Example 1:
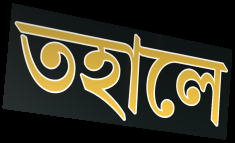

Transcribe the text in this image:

তহালে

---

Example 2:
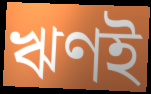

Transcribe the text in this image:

ঋণই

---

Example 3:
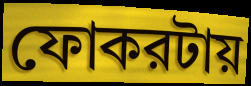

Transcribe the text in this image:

ফোকরটায়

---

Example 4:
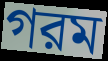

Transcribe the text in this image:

গরম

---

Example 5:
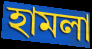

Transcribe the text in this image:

হামলা